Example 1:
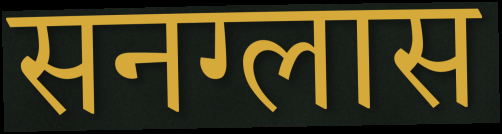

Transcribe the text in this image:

सनग्लास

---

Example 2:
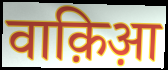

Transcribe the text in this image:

वाक़िआ़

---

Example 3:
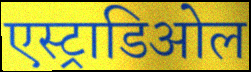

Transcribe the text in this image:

एस्ट्राडिओल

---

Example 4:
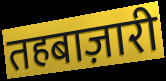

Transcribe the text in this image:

तहबाज़ारी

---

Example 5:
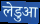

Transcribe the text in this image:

लेडुआ